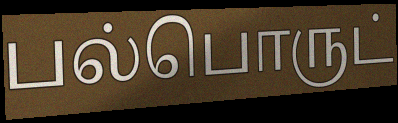
பல்பொருட்